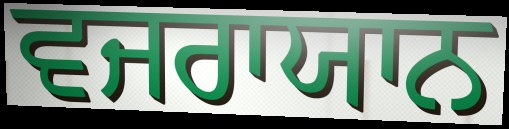
ਵਜਰਾਯਾਨ